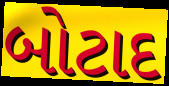
બોટાદ